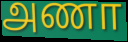
அணா